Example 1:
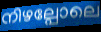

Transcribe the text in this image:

നിഴല്പോലെ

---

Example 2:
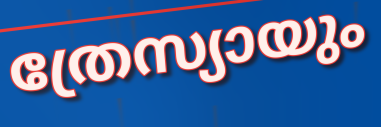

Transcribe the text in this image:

ത്രേസ്യായും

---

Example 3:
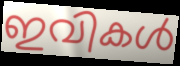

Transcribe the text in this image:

ഇവികൾ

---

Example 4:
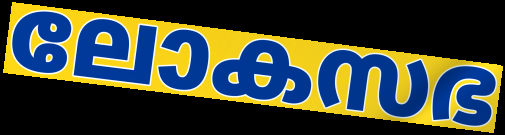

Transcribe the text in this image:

ലോകസഭ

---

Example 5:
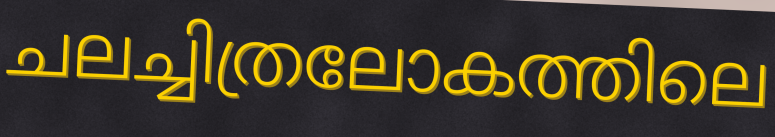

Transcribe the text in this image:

ചലച്ചിത്രലോകത്തിലെ